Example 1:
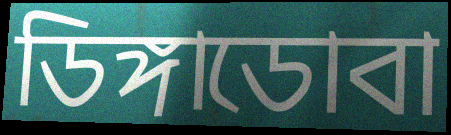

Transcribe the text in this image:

ডিঙ্গাডোবা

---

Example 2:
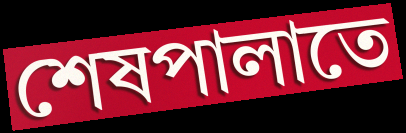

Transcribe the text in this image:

শেষপালাতে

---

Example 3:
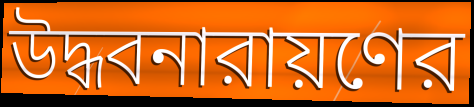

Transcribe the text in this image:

উদ্ধবনারায়ণের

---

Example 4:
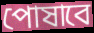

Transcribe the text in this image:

পোষাবে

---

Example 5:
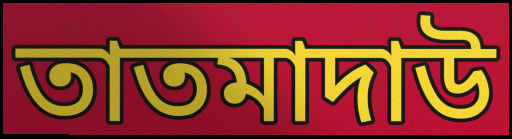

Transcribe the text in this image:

তাতমাদাউ